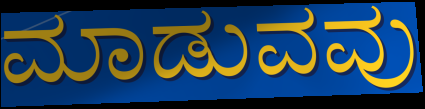
ಮಾಡುವವು